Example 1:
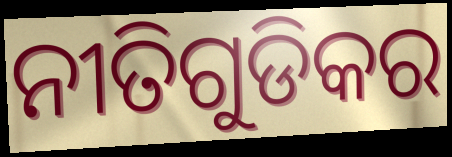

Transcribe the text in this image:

ନୀତିଗୁଡିକର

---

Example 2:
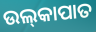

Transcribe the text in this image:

ଉଲ୍‍କାପାତ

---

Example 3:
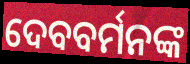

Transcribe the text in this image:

ଦେବବର୍ମନଙ୍କ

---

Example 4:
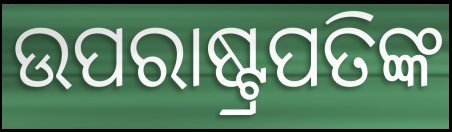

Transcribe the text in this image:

ଉପରାଷ୍ଟ୍ରପତିଙ୍କ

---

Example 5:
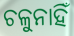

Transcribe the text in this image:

ଚଳୁନାହିଁ